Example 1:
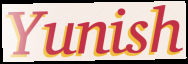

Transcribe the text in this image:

Yunish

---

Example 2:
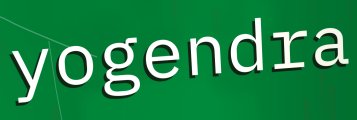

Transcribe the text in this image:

yogendra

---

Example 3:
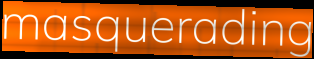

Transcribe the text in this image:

masquerading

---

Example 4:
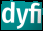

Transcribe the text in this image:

dyfi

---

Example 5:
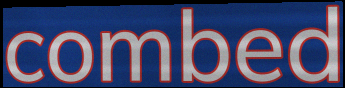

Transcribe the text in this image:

combed